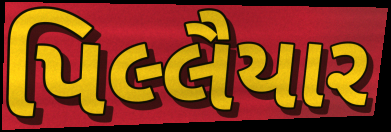
પિલ્લૈયાર